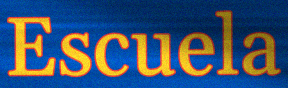
Escuela